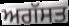
ਅਗੱਸਤ